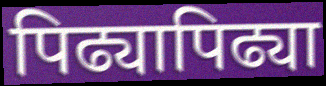
पिढ्यापिढ्या